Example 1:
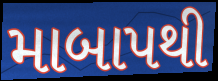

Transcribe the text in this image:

માબાપથી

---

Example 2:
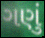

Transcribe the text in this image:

ગણું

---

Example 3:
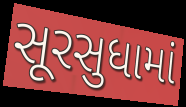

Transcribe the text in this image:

સૂરસુધામાં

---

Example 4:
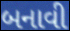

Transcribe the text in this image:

બનાવી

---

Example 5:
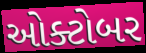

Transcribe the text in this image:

ઓક્ટોબર